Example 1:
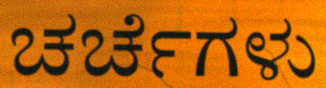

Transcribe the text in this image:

ಚರ್ಚೆಗಳು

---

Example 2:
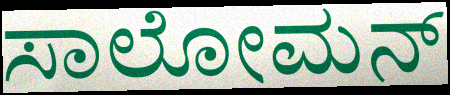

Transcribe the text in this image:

ಸಾಲೋಮನ್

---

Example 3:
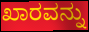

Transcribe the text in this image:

ಖಾರವನ್ನು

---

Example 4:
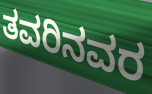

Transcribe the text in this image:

ತವರಿನವರ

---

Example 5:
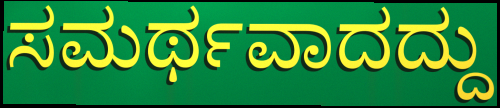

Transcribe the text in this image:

ಸಮರ್ಥವಾದದ್ದು